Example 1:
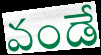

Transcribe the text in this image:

వండే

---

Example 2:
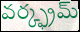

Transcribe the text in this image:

వర్క్ఫ్రమ్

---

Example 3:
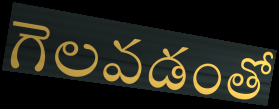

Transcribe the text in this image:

గెలవడంతో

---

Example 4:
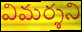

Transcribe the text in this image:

విమర్శని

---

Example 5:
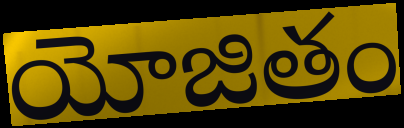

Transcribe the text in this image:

యోజితం